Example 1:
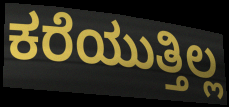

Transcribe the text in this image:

ಕರೆಯುತ್ತಿಲ್ಲ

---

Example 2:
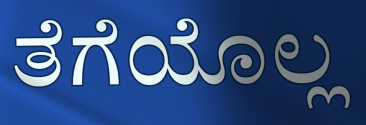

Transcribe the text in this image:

ತೆಗೆಯೊಲ್ಲ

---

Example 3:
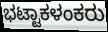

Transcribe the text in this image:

ಭಟ್ಟಾಕಳಂಕರು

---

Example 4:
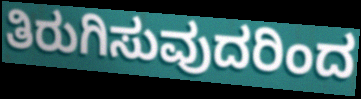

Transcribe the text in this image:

ತಿರುಗಿಸುವುದರಿಂದ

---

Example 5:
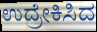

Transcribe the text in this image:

ಉದ್ರೇಕಿಸಿದ